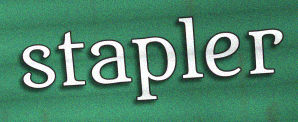
stapler